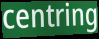
centring